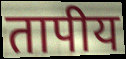
तापीय